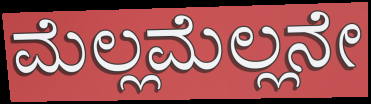
ಮೆಲ್ಲಮೆಲ್ಲನೇ